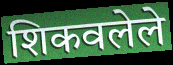
शिकवलेले